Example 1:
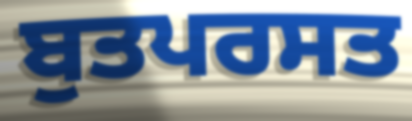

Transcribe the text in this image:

ਬੁਤਪਰਸਤ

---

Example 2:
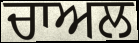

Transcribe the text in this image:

ਚਾਅਲ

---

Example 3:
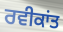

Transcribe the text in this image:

ਰਵੀਕਾਂਤ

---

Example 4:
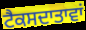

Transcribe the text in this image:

ਟੈਕਸਦਾਤਾਵਾਂ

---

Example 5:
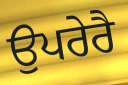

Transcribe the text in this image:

ਉਪਰੇਰੈ